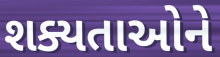
શક્યતાઓને